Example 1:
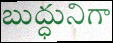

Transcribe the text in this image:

బుద్ధునిగా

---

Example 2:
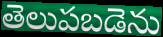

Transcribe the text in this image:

తెలుపబడెను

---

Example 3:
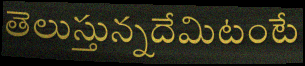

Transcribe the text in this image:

తెలుస్తున్నదేమిటంటే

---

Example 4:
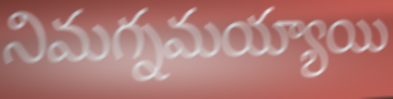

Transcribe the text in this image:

నిమగ్నమయ్యాయి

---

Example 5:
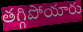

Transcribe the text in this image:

తగ్గిపోయారు